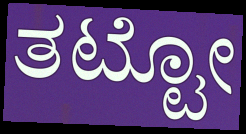
ತಟ್ಟೋ